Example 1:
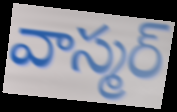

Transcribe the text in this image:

వాస్మర్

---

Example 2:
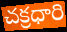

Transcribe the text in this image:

చక్రధారి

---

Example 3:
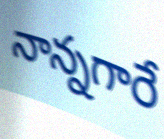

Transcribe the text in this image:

నాన్నగారే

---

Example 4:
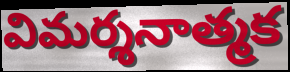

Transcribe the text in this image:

విమర్శనాత్మక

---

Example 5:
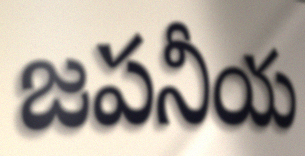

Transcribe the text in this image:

జపనీయ